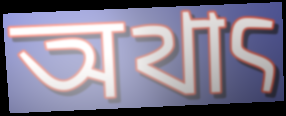
অথাৎ